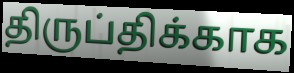
திருப்திக்காக